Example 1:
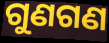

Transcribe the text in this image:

ଗୁଣଗଣ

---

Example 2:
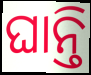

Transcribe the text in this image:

ଘାନ୍ତି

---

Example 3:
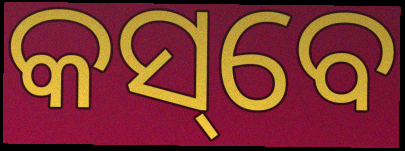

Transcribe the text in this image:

କସ୍‌ବେ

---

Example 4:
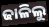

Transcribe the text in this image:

ଢାଳିଲୁ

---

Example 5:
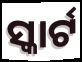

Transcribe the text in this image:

ସ୍କାର୍ଟ